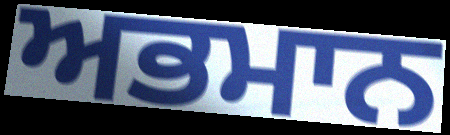
ਅਭਮਾਨ